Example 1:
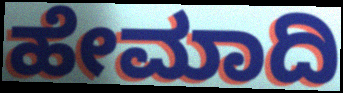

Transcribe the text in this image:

ಹೇಮಾದಿ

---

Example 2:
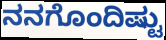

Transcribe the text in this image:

ನನಗೊಂದಿಷ್ಟು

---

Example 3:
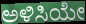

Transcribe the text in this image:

ಅಳಿಸಿಯೇ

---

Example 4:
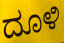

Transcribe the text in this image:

ದೂಳಿ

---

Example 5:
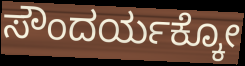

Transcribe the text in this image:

ಸೌಂದರ್ಯಕ್ಕೋ